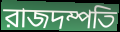
রাজদম্পতি